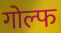
गोल्फ